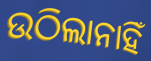
ଉଠିଲାନାହିଁ